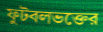
ফুটবলভক্তের